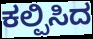
ಕಲ್ಪಿಸಿದ